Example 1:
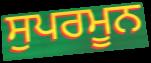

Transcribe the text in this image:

ਸੁਪਰਮੂਨ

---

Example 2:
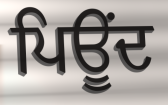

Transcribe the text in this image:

ਪਿਊਂਦ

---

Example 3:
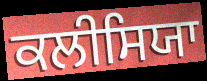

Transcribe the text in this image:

ਕਲੀਸਿਯਾ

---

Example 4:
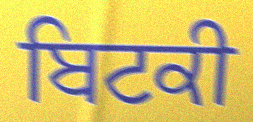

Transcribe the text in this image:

ਬਿਟਕੀ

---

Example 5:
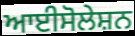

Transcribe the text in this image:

ਆਈਸੋਲੇਸ਼ਨ